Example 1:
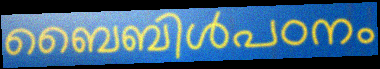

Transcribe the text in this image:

ബൈബിൾപഠനം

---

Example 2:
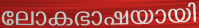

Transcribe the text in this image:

ലോകഭാഷയായി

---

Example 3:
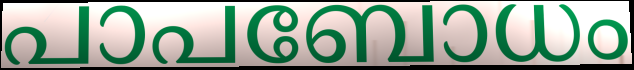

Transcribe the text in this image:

പാപബോധം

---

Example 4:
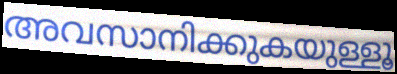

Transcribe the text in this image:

അവസാനിക്കുകയുള്ളൂ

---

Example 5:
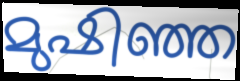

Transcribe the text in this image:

മുഷിഞ്ഞ